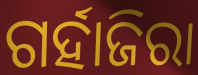
ଗର୍ହାଜିରା